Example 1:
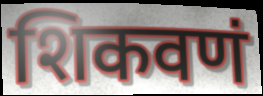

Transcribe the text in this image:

शिकवणं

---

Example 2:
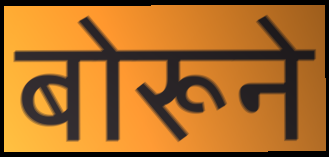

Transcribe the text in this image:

बोरूने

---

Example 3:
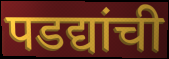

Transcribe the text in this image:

पडद्यांची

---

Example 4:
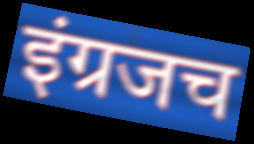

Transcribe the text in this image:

इंग्रजच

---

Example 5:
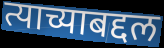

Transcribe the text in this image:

त्याच्याबद्दल